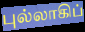
புல்லாகிப்